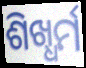
ଶିଖ୍ଧର୍ମ